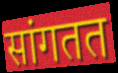
सांगतत